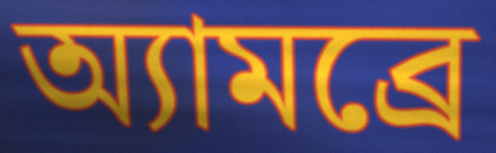
অ্যামব্রে